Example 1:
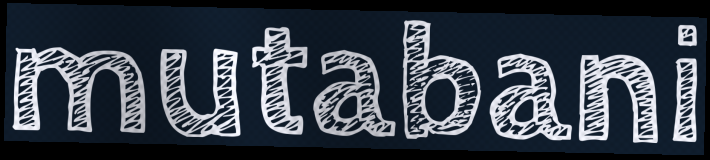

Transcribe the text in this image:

mutabani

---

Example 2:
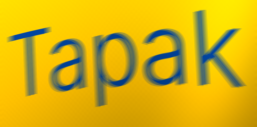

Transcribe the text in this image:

Tapak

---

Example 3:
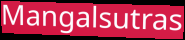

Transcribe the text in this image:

Mangalsutras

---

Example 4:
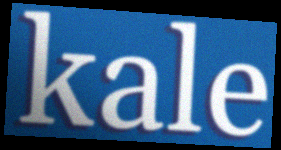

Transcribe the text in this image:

kale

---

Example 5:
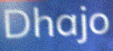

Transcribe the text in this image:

Dhajo